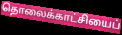
தொலைக்காட்சியைப்